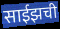
साईझची